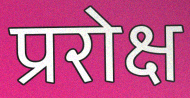
प्ररोक्ष